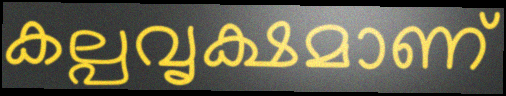
കല്പവൃക്ഷമാണ്